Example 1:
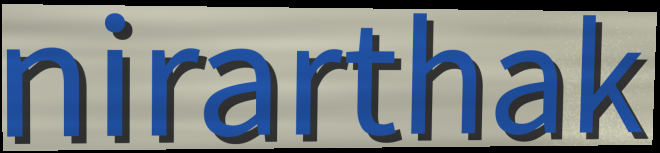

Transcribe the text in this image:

nirarthak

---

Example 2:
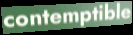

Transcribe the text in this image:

contemptible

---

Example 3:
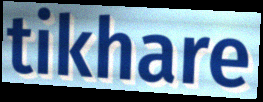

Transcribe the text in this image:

tikhare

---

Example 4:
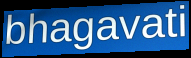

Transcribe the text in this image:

bhagavati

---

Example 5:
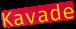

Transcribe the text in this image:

Kavade